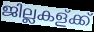
ജില്ലകള്ക്ക്